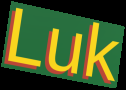
Luk